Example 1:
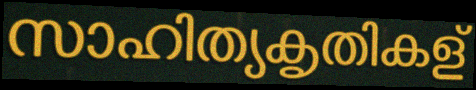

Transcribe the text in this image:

സാഹിത്യകൃതികള്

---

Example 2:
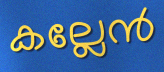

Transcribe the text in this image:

കല്ലേൻ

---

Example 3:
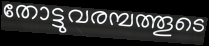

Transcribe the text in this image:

തോട്ടുവരമ്പത്തൂടെ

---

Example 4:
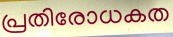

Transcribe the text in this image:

പ്രതിരോധകത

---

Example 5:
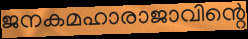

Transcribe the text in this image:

ജനകമഹാരാജാവിന്റെ